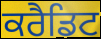
ਕਰੈਡਿਟ